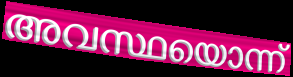
അവസ്ഥയൊന്ന്